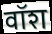
वॉश